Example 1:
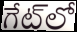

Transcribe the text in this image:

గేట్‌లో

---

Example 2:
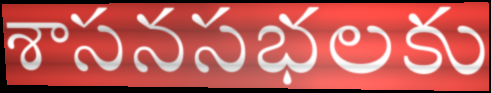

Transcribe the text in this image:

శాసనసభలకు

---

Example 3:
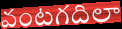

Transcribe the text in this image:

వంటగదిలా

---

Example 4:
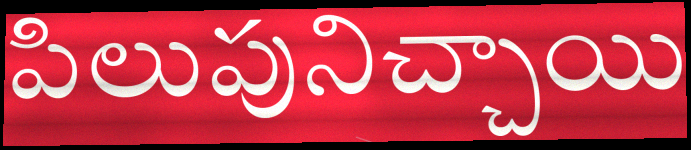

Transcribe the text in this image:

పిలుపునిచ్చాయి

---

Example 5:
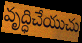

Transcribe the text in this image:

వృద్ధిచేయుచు